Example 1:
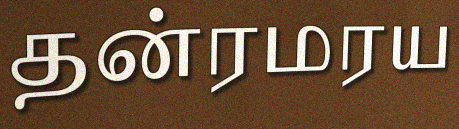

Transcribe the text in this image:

தன்ரமரய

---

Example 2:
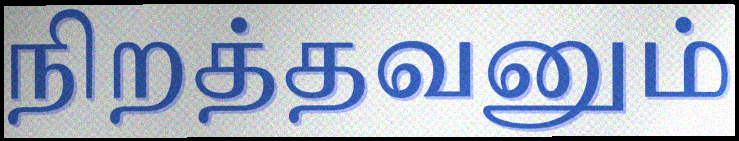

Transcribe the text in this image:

நிறத்தவனும்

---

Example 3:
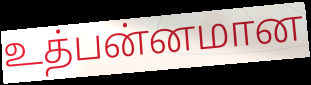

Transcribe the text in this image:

உத்பன்னமான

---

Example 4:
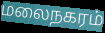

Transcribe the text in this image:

மலைநகரம்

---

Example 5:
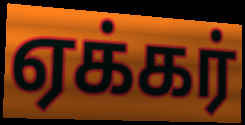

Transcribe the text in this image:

ஏக்கர்